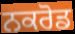
ਨਕਰੋਡ